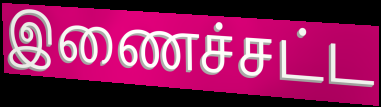
இணைச்சட்ட